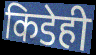
किडेही